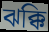
ঝক্কি